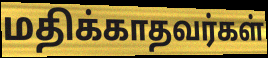
மதிக்காதவர்கள்